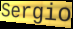
Sergio